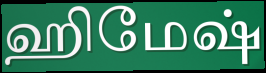
ஹிமேஷ்